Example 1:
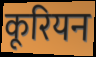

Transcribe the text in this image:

कूरियन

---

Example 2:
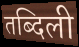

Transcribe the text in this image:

तब्दिली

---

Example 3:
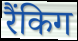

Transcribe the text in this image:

रैंकिग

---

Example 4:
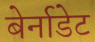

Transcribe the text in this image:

बेर्नाडेट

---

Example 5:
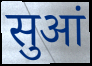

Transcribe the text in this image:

सुआं